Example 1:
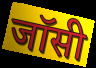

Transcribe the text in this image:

जॉसी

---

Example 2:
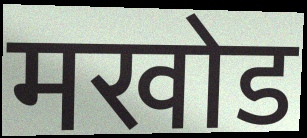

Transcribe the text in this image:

मखोड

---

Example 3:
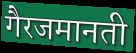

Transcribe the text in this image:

गैरजमानती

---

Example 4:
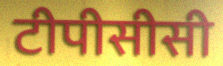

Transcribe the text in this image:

टीपीसीसी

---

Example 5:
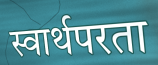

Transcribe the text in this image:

स्वार्थपरता